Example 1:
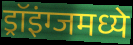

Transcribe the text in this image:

ड्रॉइंग्जमध्ये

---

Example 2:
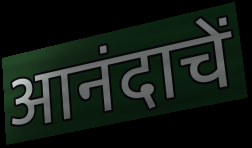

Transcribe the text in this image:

आनंदाचें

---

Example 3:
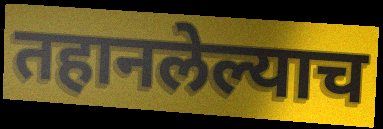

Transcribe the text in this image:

तहानलेल्याच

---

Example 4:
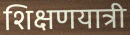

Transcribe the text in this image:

शिक्षणयात्री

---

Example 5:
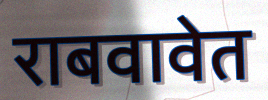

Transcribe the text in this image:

राबवावेत